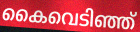
കൈവെടിഞ്ഞ്